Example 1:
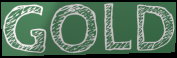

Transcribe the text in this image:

GOLD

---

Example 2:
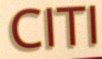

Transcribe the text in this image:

CITI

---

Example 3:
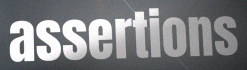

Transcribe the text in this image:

assertions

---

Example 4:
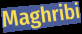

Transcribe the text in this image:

Maghribi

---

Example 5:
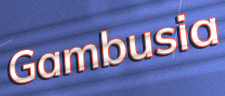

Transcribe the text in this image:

Gambusia